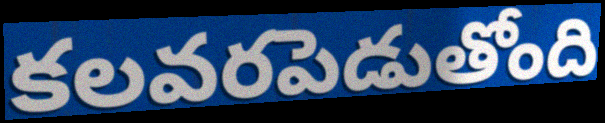
కలవరపెడుతోంది